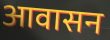
आवासन